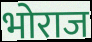
भोराज